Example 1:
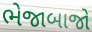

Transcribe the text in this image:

ભેજાબાજો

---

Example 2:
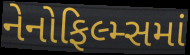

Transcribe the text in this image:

નેનોફિલ્મ્સમાં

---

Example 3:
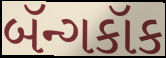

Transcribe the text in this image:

બૅન્ગકૉક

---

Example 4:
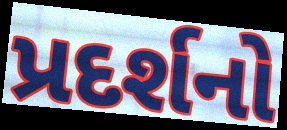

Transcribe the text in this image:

પ્રદર્શનો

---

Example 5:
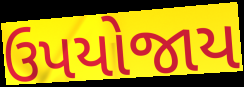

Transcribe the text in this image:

ઉપયોજાય